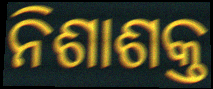
ନିଶାଶକ୍ତ